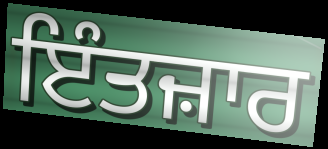
ਇੰਤਜ਼ਾਰ